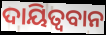
ଦାୟିତ୍ଵବାନ